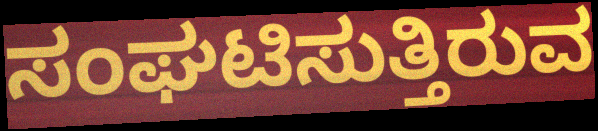
ಸಂಘಟಿಸುತ್ತಿರುವ